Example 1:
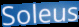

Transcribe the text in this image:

Soleus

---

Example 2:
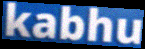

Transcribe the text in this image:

kabhu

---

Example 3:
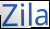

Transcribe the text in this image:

Zila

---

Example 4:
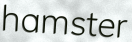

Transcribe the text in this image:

hamster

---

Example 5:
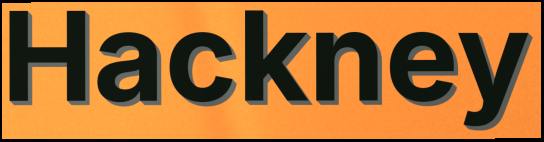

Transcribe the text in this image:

Hackney